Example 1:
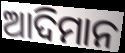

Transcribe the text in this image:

ଆଦିମାନ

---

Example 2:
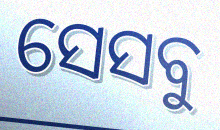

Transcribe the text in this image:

ସେସବୁ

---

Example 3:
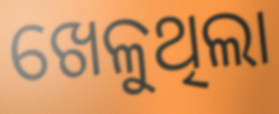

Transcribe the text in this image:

ଖେଳୁଥିଲା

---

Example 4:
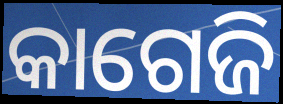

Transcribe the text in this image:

କାଗେଜି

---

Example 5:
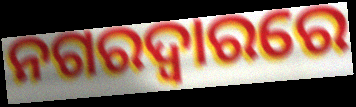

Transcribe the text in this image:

ନଗରଦ୍ୱାରରେ